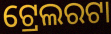
ଟ୍ରେଲରଟା